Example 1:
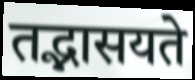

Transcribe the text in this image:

तद्भासयते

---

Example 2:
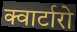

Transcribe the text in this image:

क्वार्टारो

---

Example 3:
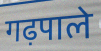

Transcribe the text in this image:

गढ़पाले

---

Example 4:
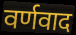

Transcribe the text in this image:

वर्णवाद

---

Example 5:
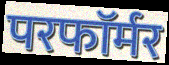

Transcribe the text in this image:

परफॉर्मर